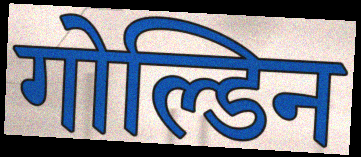
गोल्डिन